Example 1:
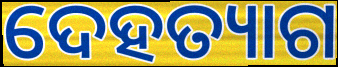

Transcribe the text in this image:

ଦେହତ୍ୟାଗ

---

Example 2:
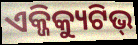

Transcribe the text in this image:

ଏକ୍ଜିକ୍ୟୁଟିଭ୍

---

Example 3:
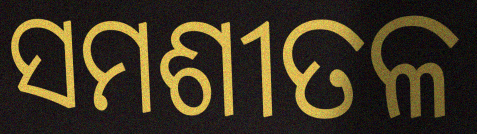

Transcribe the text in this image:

ସମଶୀତଳ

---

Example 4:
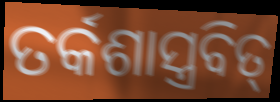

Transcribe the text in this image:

ତର୍କଶାସ୍ତ୍ରବିତ୍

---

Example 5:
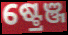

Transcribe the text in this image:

ଷ୍ଟ୍ରେଞ୍ଜ